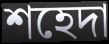
শহেদা